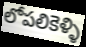
లోపలికెళ్ళి